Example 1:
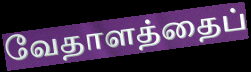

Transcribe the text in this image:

வேதாளத்தைப்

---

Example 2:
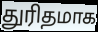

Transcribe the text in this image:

துரிதமாக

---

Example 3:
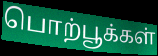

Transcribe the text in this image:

பொற்பூக்கள்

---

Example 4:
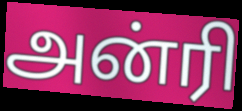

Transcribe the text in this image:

அன்ரி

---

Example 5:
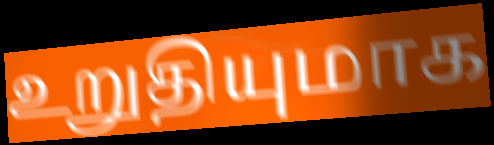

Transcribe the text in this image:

உறுதியுமாக